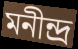
মনীন্দ্র